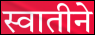
स्वातीने